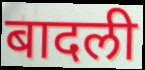
बादली